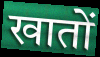
खातों